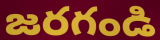
జరగండి